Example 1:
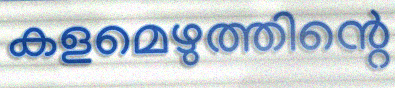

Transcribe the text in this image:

കളമെഴുത്തിന്റെ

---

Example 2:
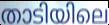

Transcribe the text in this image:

താടിയിലെ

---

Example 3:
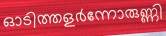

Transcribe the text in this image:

ഓടിത്തളർന്നോരുണ്ണി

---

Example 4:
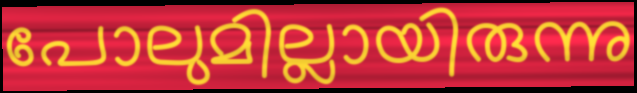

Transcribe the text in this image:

പോലുമില്ലായിരുന്നു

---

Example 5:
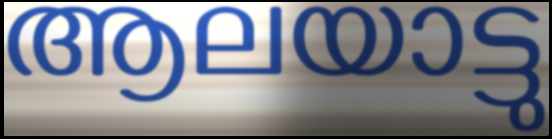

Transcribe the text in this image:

ആലയാട്ടു